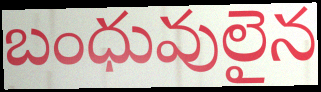
బంధువులైన